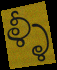
ళ్ళీ